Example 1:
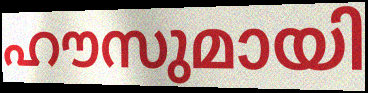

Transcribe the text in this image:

ഹൗസുമായി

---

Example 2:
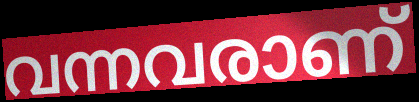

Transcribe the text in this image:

വന്നവരാണ്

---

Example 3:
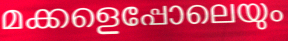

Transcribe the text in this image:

മക്കളെപ്പോലെയും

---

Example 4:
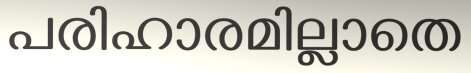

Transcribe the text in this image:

പരിഹാരമില്ലാതെ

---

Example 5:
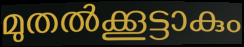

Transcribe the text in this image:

മുതൽക്കൂട്ടാകും